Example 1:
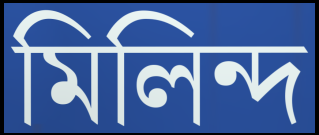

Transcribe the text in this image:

মিলিন্দ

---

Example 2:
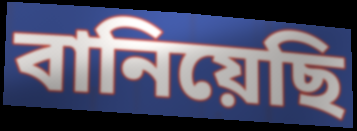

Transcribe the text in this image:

বানিয়েছি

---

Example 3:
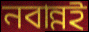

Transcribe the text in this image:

নবান্নই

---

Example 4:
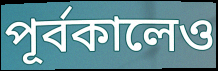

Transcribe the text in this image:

পূর্বকালেও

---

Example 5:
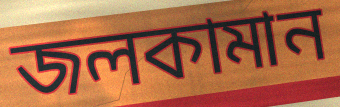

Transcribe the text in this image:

জলকামান